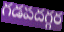
గడపదగ్గర